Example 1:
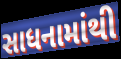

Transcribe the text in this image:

સાધનામાંથી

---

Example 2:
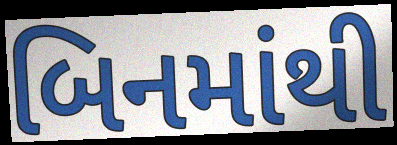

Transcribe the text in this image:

બિનમાંથી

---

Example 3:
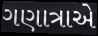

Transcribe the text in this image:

ગણાત્રાએ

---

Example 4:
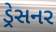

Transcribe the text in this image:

ડ્રેસનર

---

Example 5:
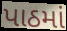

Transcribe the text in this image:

પાઠમાં